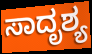
ಸಾದೃಶ್ಯ